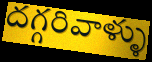
దగ్గరివాళ్ళు